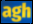
agh